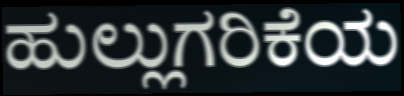
ಹುಲ್ಲುಗರಿಕೆಯ